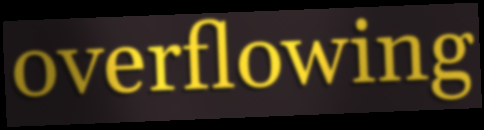
overflowing